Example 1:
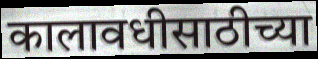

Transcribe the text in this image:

कालावधीसाठीच्या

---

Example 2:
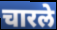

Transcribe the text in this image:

चारले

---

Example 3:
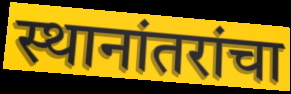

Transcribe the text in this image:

स्थानांतरांचा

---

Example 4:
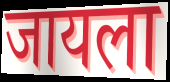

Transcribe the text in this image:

जायला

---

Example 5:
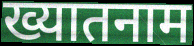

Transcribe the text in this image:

ख्यातनाम